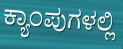
ಕ್ಯಾಂಪುಗಳಲ್ಲಿ